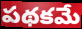
పథకమే